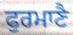
ਫੁਰਮਾਣੈ